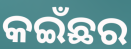
କଇଁଛର